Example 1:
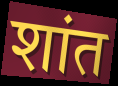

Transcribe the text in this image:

शांत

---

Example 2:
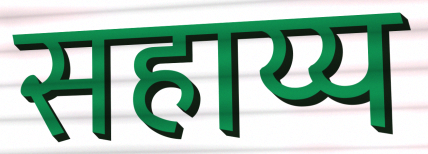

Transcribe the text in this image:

सहाय्य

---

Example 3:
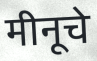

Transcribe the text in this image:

मीनूचे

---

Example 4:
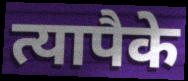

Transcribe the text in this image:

त्यापैके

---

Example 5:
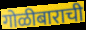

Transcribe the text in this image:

गोळीबाराची